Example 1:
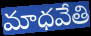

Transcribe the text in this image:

మాధవేతి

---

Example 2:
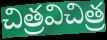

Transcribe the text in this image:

చిత్రవిచిత్ర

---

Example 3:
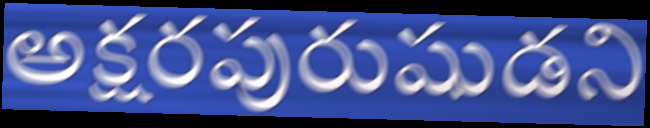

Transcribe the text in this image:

అక్షరపురుషుడని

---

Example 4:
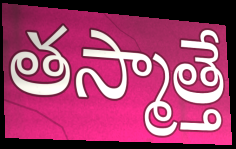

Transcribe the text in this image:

తస్మాత్తే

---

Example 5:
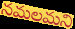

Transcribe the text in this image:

నమలమని